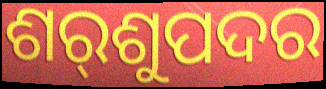
ଶର୍‌ଶୁପଦର